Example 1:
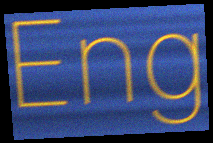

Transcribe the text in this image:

Eng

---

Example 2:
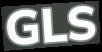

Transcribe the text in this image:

GLS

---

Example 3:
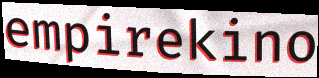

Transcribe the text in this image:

empirekino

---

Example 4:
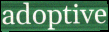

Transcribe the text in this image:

adoptive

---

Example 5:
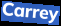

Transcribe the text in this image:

Carrey